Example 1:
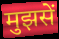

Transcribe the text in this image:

मुझसें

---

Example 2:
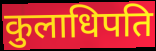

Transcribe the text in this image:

कुलाधिपति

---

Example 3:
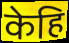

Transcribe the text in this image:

केहि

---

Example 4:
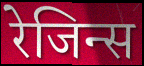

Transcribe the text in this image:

रेजिन्स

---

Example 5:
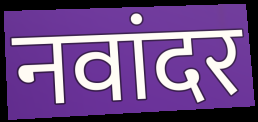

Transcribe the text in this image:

नवांदर